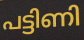
പട്ടിണി